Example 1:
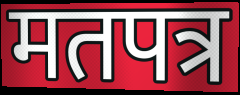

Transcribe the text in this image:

मतपत्र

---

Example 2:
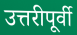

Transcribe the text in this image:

उत्तरीपूर्वी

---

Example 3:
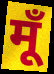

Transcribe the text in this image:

मूँ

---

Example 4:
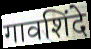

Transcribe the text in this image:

गावशिंदे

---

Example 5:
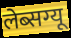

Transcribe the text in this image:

लेब्सग्यू